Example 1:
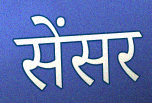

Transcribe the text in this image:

सेंसर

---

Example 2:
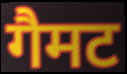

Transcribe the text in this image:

गैमट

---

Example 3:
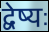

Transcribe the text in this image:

द्वेष्यः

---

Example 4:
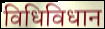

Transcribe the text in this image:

विधिविधान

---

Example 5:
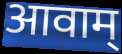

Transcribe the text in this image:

आवाम्